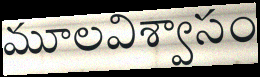
మూలవిశ్వాసం